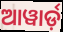
ଆୱାର୍ଡ଼